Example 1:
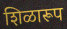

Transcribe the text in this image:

शिळारूप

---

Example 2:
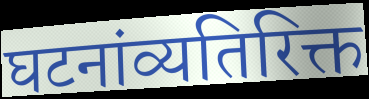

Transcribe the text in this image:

घटनांव्यतिरिक्त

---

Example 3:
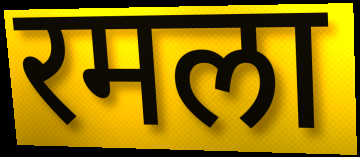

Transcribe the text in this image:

रमला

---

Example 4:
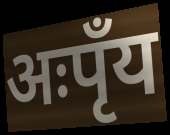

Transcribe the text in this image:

अःपृँय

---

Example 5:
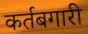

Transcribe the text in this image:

कर्तबगारी